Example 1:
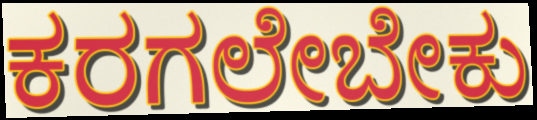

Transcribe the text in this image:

ಕರಗಲೇಬೇಕು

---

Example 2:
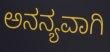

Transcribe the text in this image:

ಅನನ್ಯವಾಗಿ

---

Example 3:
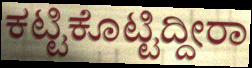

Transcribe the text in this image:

ಕಟ್ಟಿಕೊಟ್ಟಿದ್ದೀರಾ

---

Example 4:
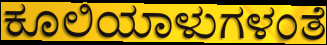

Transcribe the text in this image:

ಕೂಲಿಯಾಳುಗಳಂತೆ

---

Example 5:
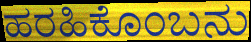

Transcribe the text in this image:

ಹರಹಿಕೊಂಬನು